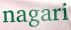
nagari